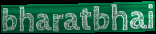
bharatbhai